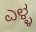
ಎಳ್ಳ